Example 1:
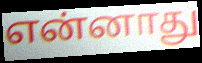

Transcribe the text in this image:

என்னாது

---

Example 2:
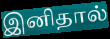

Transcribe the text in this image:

இனிதால்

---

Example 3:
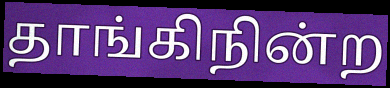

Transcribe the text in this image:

தாங்கிநின்ற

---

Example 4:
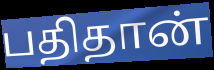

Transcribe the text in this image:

பதிதான்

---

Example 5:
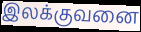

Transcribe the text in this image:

இலக்குவனை